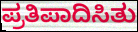
ಪ್ರತಿಪಾದಿಸಿತು